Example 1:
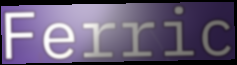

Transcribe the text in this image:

Ferric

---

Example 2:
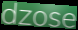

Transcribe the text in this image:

dzose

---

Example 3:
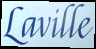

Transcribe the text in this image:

Laville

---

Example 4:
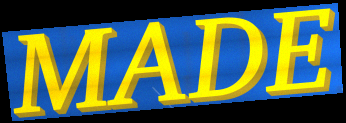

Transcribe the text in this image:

MADE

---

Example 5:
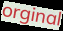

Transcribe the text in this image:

orginal